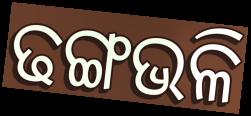
ଢଙ୍ଗଭଳି